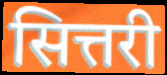
सित्तरी